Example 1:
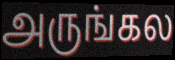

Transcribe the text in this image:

அருங்கல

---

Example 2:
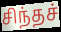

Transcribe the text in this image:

சிந்தச்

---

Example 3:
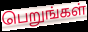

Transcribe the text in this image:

பெறுங்கள்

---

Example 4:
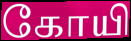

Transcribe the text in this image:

கோயி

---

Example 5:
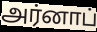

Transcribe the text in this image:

அர்னாப்